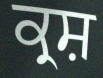
ਕ੍ਰਸ਼